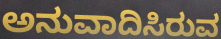
ಅನುವಾದಿಸಿರುವ